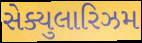
સેક્યુલારિઝમ